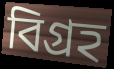
বিগ্রহ